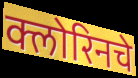
क्लोरिनचे